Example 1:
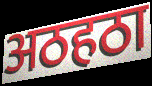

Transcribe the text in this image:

अठहठा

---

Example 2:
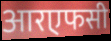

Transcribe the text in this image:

आरएफसी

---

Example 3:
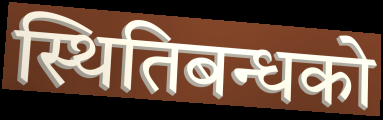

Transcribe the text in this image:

स्थितिबन्धको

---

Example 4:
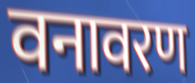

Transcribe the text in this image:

वनावरण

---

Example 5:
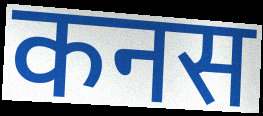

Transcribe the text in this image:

कनस